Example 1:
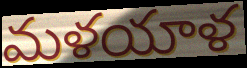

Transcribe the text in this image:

మళయాళ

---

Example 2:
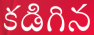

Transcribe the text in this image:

కడిగిన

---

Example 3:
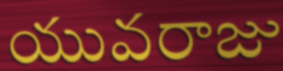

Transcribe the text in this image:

యువరాజు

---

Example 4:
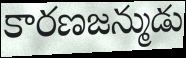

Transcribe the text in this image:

కారణజన్ముడు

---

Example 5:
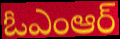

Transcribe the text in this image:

ఓఎంఆర్